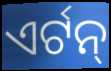
ଏର୍ଟନ୍